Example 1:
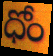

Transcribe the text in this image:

ధోం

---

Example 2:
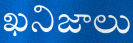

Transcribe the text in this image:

ఖనిజాలు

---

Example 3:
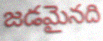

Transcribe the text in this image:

జడమైనది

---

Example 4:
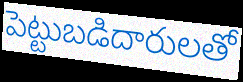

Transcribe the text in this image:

పెట్టుబడిదారులతో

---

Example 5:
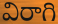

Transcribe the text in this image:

విరాగి